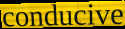
conducive